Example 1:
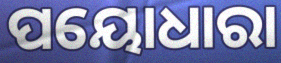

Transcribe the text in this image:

ପୟୋଧାରା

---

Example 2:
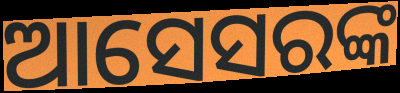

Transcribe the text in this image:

ଆସେସରଙ୍କ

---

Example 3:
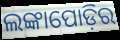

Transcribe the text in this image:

ଲଙ୍କାପୋଡ଼ିର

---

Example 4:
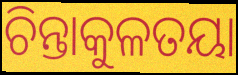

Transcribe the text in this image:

ଚିନ୍ତାକୁଳତୟା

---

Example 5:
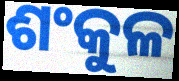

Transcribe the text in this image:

ଶଂକୁଳ